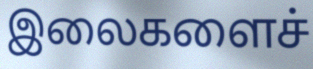
இலைகளைச்